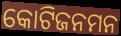
କୋଟିଜନମନ